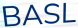
BASL